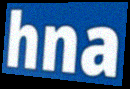
hna